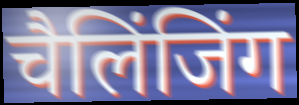
चैलिंजिंग